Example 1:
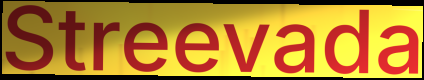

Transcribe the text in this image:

Streevada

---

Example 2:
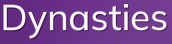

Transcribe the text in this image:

Dynasties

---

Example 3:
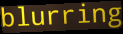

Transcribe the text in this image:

blurring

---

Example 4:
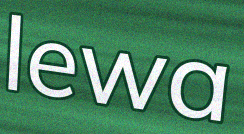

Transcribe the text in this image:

lewa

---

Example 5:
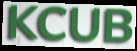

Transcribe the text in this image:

KCUB